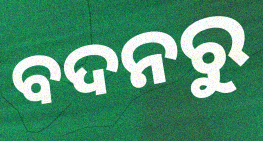
ବଦନରୁ